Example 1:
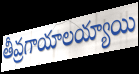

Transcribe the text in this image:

తీవ్రగాయాలయ్యాయి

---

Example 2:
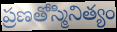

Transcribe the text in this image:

ప్రణతోస్మినిత్యం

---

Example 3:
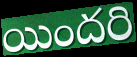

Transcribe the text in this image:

యిందరి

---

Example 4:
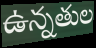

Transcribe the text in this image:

ఉన్నతుల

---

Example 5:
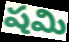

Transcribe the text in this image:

షమి